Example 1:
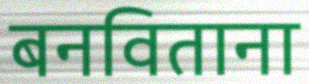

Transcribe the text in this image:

बनविताना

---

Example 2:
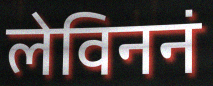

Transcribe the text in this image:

लेविननं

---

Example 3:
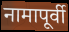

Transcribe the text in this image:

नामापूर्वी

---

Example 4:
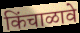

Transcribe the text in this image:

किंचाळावे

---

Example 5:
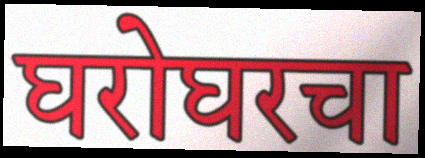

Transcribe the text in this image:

घरोघरचा